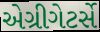
એગ્રીગેટર્સે